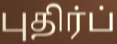
புதிர்ப்